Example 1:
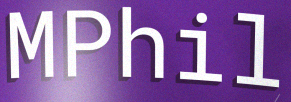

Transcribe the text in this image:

MPhil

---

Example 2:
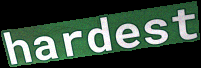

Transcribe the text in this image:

hardest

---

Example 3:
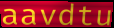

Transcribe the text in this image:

aavdtu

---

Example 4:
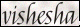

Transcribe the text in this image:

vishesha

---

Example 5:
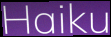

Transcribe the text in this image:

Haiku